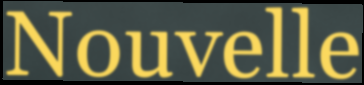
Nouvelle